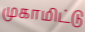
முகாமிட்டு